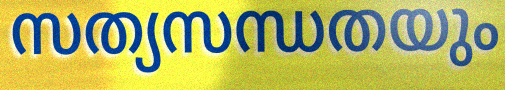
സത്യസന്ധതയും